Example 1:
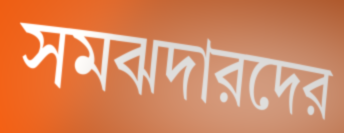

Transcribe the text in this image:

সমঝদারদের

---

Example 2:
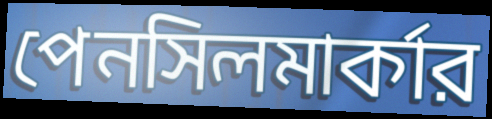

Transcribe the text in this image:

পেনসিলমার্কার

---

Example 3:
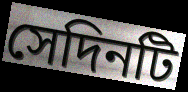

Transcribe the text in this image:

সেদিনটি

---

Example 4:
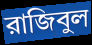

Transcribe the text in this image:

রাজিবুল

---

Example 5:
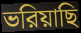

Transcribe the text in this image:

ভরিয়াছি